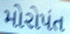
મોરોપંત